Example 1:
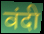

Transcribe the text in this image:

वंदी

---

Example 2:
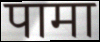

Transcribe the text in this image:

पामा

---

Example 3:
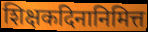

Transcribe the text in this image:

शिक्षकदिनानिमित्त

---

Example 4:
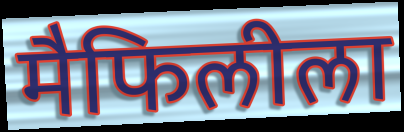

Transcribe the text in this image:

मैफिलीला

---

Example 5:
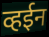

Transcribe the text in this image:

व्हईन